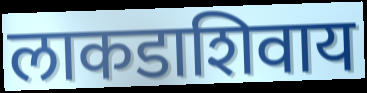
लाकडाशिवाय